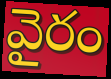
వైరం